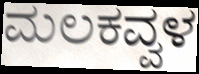
ಮಲಕವ್ವಳ